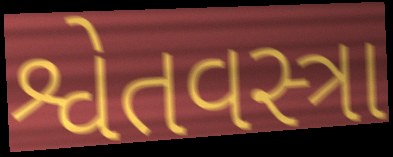
શ્વેતવસ્ત્રા